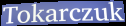
Tokarczuk